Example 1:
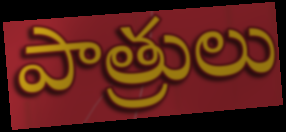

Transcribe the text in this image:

పాత్రులు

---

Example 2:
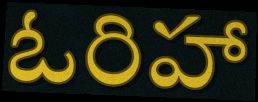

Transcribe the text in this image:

ఓరిహా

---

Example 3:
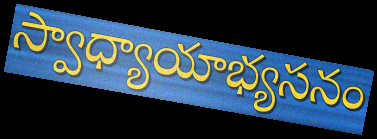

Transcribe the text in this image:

స్వాధ్యాయాభ్యసనం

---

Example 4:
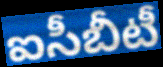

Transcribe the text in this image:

ఐసీబీటీ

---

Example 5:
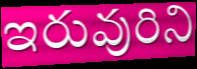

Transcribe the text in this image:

ఇరువురిని